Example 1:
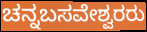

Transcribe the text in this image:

ಚನ್ನಬಸವೇಶ್ವರರು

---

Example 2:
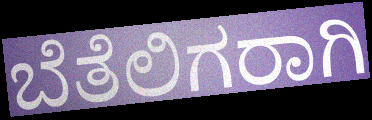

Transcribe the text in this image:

ಬೆತೆಲಿಗರಾಗಿ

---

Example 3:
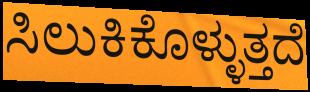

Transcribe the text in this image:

ಸಿಲುಕಿಕೊಳ್ಳುತ್ತದೆ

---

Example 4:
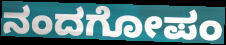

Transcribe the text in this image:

ನಂದಗೋಪಂ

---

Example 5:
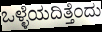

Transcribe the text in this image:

ಒಳ್ಳೆಯದಿತ್ತೆಂದು